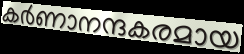
കർണാനന്ദകരമായ